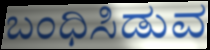
ಬಂಧಿಸಿಡುವ